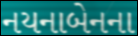
નયનાબેનના